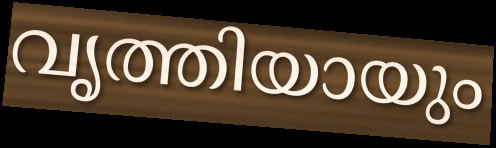
വൃത്തിയായും